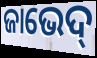
ଜାଭେଦ୍